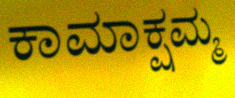
ಕಾಮಾಕ್ಷಮ್ಮ